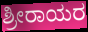
ಶ್ರೀರಾಯರ